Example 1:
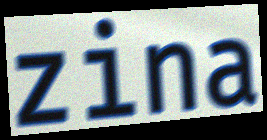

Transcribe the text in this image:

zina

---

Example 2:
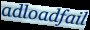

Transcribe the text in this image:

adloadfail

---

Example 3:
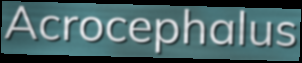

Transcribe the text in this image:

Acrocephalus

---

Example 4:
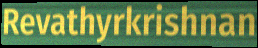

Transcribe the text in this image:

Revathyrkrishnan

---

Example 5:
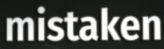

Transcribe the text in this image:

mistaken